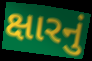
ક્ષારનું